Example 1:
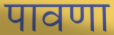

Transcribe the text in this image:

पावणा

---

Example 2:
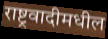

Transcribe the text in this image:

राष्ट्रवादीमधील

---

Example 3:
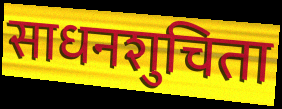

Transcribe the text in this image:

साधनशुचिता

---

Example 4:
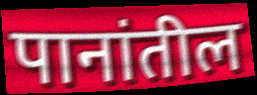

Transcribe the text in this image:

पानांतील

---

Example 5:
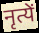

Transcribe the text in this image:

नृत्यें